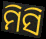
ମିସି